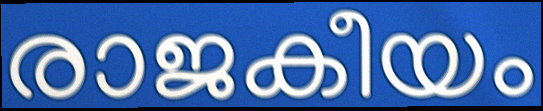
രാജകീയം